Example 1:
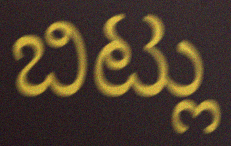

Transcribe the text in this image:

ಬಿಟ್ಲು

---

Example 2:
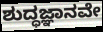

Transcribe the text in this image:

ಶುದ್ಧಜ್ಞಾನವೇ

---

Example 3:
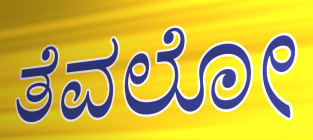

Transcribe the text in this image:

ತೆವಲೋ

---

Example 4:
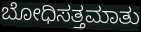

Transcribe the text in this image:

ಬೋಧಿಸತ್ತಮಾತು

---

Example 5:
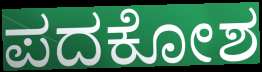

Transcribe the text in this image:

ಪದಕೋಶ